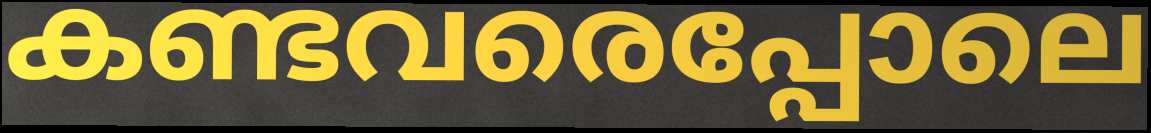
കണ്ടവരെപ്പോലെ